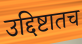
उद्दिष्टातच